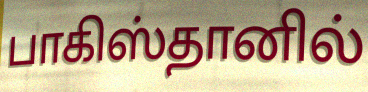
பாகிஸ்தானில்